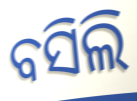
ବସିଲି